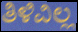
ತಿಳಿವಿಲ್ಲ